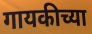
गायकीच्या